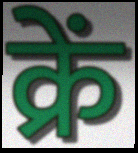
क्रें